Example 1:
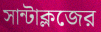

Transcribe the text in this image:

সান্টাক্লজের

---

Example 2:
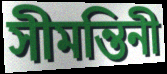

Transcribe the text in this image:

সীমন্তিনী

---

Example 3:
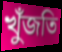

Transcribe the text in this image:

খুঁজতি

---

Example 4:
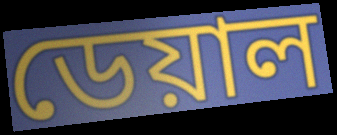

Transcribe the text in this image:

ডেয়াল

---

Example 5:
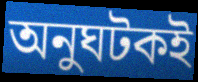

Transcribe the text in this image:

অনুঘটকই